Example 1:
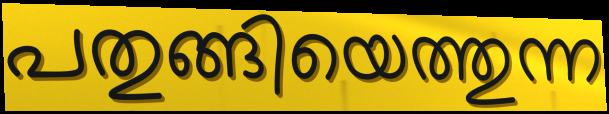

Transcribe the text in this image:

പതുങ്ങിയെത്തുന്ന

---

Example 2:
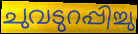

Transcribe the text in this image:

ചുവടുറപ്പിച്ചു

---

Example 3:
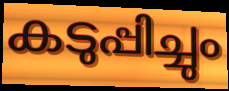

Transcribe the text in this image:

കടുപ്പിച്ചും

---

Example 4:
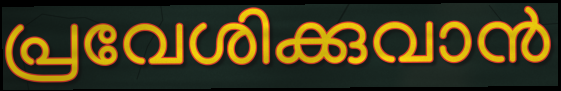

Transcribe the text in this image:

പ്രവേശിക്കുവാൻ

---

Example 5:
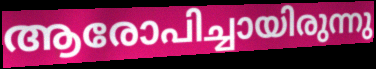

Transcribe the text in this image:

ആരോപിച്ചായിരുന്നു